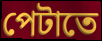
পেটাতে